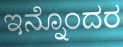
ಇನ್ನೊಂದರ